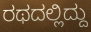
ರಥದಲ್ಲಿದ್ದು